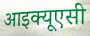
आइक्यूएसी